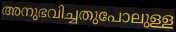
അനുഭവിച്ചതുപോലുള്ള